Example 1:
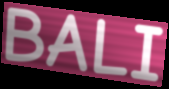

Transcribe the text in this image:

BALI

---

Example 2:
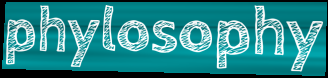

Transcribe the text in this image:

phylosophy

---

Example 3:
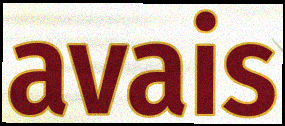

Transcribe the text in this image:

avais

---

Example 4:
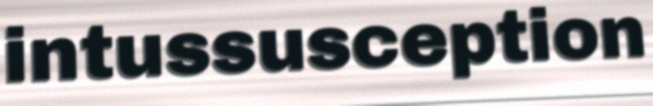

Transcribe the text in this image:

intussusception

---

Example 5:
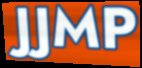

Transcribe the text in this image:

JJMP